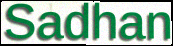
Sadhan